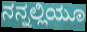
ನನ್ನಲ್ಲಿಯೂ